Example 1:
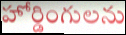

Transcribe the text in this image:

హోర్డింగులను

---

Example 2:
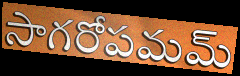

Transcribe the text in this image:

సాగరోపమమ్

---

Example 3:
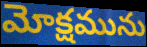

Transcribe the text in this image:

మోక్షమును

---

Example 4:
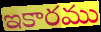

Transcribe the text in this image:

ఇకారము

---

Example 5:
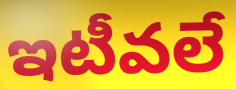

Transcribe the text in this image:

ఇటీవలే